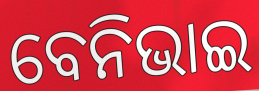
ବେନିଭାଇ